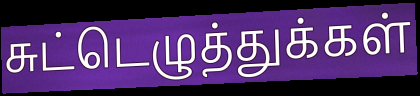
சுட்டெழுத்துக்கள்